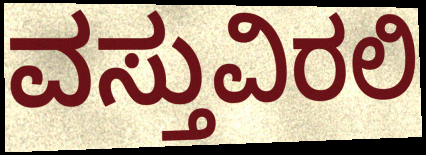
ವಸ್ತುವಿರಲಿ